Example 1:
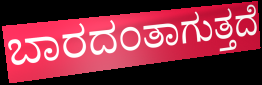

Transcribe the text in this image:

ಬಾರದಂತಾಗುತ್ತದೆ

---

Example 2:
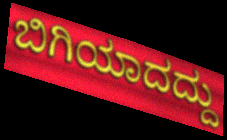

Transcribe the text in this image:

ಬಿಗಿಯಾದದ್ದು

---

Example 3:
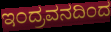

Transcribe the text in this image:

ಇಂದ್ರವನದಿಂದ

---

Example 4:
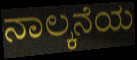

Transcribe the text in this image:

ನಾಲ್ಕನೆಯ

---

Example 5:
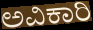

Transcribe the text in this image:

ಅವಿಕಾರಿ